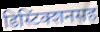
डिस्टिंक्शनसह